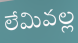
లేమివల్ల